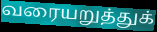
வரையறுத்துக்